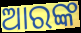
ଆରଙ୍କ